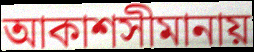
আকাশসীমানায়